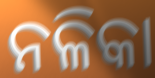
ନଳିକା